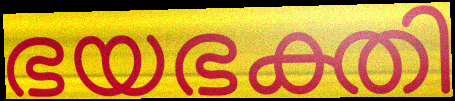
ഭയഭക്തി